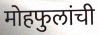
मोहफुलांची